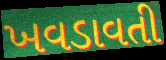
ખવડાવતી